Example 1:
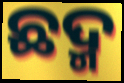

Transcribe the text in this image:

ଛଦ୍ମ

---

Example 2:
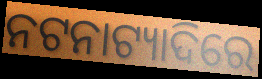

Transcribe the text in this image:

ନଟନାଟ୍ୟାଦିରେ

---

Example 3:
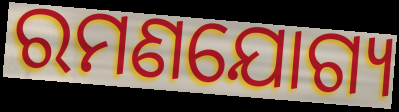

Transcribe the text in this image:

ରମଣଯୋଗ୍ୟ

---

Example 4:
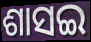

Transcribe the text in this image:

ଶାସଇ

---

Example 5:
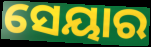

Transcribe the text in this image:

ସେୟାର